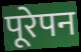
पूरेपन